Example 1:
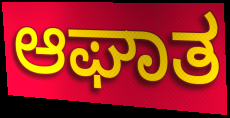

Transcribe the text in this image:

ಆಘಾತ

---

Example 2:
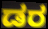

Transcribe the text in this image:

ಡರ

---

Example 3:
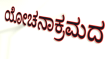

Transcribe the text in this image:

ಯೋಚನಾಕ್ರಮದ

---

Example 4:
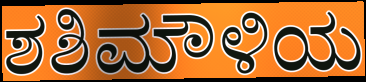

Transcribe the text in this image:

ಶಶಿಮೌಳಿಯ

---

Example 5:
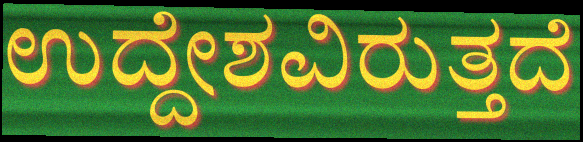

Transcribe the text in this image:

ಉದ್ದೇಶವಿರುತ್ತದೆ